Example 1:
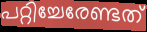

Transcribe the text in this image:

പറ്റിച്ചേരേണ്ടത്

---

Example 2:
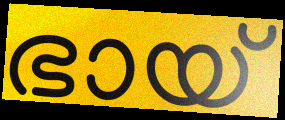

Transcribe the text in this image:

ഭായ്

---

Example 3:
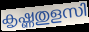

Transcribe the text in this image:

കൃഷ്ണതുളസി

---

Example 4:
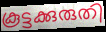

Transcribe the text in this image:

കൂട്ടക്കുരുതി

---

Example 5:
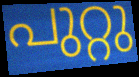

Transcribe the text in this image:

പുറ്റു